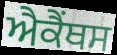
ਐਕੈਂਥਸ